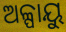
ଅଳ୍ପାୟୁ